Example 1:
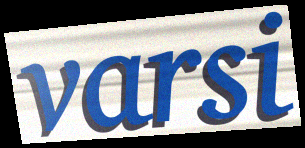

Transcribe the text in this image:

varsi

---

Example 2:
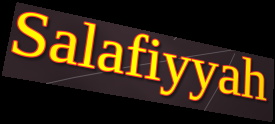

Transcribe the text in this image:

Salafiyyah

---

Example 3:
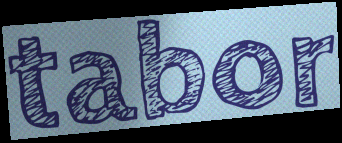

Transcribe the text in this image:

tabor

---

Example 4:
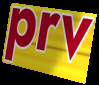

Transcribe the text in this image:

prv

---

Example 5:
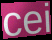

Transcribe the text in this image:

cei